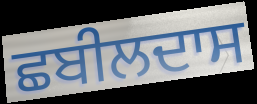
ਛਬੀਲਦਾਸ